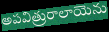
అపవిత్రురాలాయెను